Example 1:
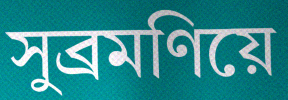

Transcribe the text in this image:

সুব্ৰমণিয়ে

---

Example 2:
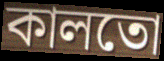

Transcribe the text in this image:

কালতো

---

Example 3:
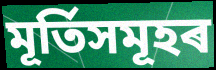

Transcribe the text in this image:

মূৰ্তিসমূহৰ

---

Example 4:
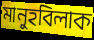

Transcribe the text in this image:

মানুহবিলাক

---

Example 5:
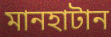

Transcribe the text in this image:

মানহাটান